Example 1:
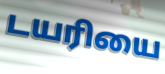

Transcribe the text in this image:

டயரியை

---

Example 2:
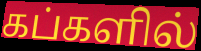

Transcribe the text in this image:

கப்களில்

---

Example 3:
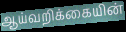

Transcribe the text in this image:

ஆய்வறிக்கையின்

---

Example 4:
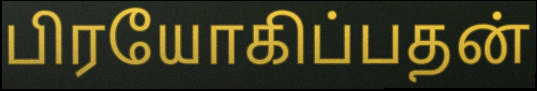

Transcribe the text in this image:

பிரயோகிப்பதன்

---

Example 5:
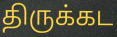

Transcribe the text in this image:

திருக்கட